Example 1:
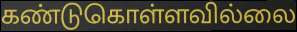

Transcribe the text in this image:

கண்டுகொள்ளவில்லை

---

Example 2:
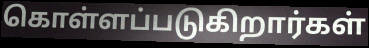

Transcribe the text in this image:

கொள்ளப்படுகிறார்கள்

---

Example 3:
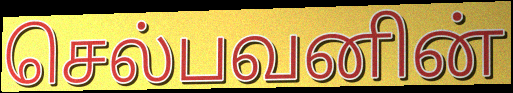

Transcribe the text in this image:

செல்பவனின்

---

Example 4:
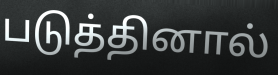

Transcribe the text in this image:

படுத்தினால்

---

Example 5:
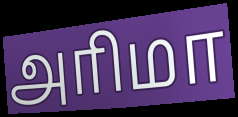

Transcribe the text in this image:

அரிமா